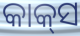
କାକ୍‌ସ